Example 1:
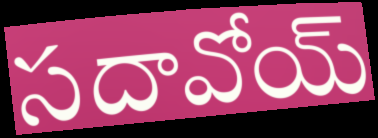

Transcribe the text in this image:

సదావోయ్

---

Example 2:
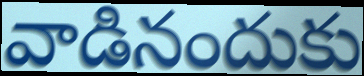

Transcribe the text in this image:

వాడినందుకు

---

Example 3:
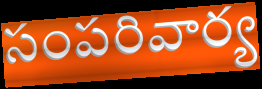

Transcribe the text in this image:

సంపరివార్య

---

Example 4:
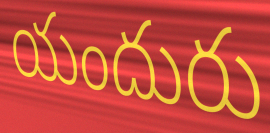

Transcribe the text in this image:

యందురు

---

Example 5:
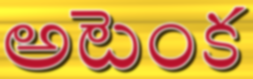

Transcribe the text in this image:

అటెంక